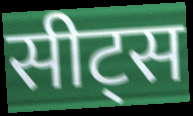
सीट्स